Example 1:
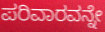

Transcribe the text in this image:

ಪರಿವಾರವನ್ನೇ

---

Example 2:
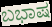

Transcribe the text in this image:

ಬಭಾಷ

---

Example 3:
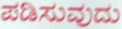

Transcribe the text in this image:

ಪಡಿಸುವುದು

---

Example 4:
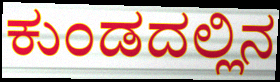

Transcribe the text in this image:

ಕುಂಡದಲ್ಲಿನ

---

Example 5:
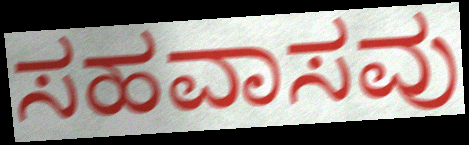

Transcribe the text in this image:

ಸಹವಾಸವು